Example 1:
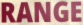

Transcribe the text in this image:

RANGE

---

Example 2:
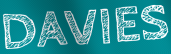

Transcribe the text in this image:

DAVIES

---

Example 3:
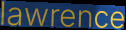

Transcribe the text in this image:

lawrence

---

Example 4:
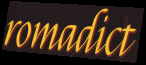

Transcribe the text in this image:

romadict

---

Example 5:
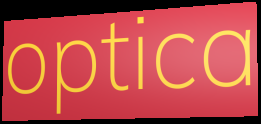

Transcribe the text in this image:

optica